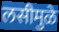
लसीमुळे